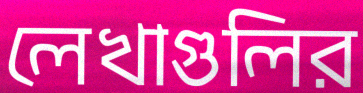
লেখাগুলির